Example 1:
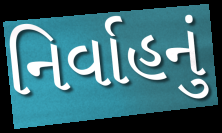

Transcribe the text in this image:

નિર્વાહનું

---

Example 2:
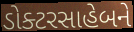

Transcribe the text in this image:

ડોક્ટરસાહેબને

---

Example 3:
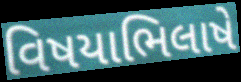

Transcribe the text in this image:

વિષયાભિલાષે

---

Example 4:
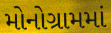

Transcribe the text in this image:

મોનોગ્રામમાં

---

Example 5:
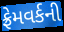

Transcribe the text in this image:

ફ્રેમવર્કની